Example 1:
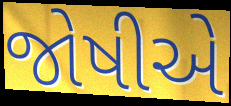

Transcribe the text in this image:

જોષીએ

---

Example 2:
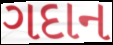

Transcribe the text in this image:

ગદાન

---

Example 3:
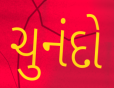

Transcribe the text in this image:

ચુનંદો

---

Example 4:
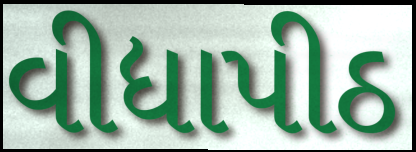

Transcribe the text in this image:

વીદ્યાપીઠ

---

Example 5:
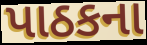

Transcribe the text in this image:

પાઠકના